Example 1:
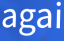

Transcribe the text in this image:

agai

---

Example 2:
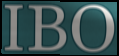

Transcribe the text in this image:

IBO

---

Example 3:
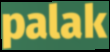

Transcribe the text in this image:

palak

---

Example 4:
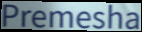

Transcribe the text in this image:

Premesha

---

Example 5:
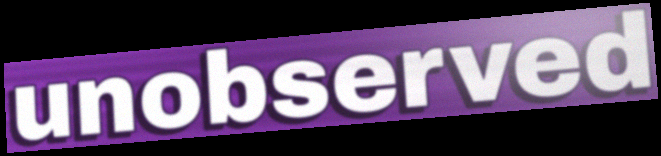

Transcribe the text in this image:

unobserved